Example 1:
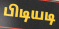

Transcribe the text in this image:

பிடியடி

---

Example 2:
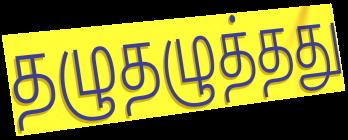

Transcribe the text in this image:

தழுதழுத்தது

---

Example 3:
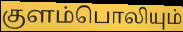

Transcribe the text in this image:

குளம்பொலியும்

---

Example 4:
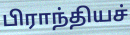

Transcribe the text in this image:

பிராந்தியச்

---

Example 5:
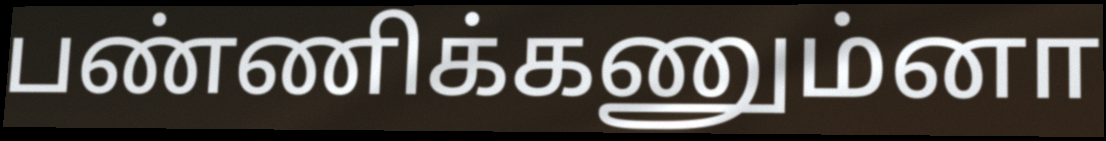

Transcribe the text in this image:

பண்ணிக்கணும்னா